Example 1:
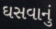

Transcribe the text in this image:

ઘસવાનું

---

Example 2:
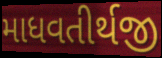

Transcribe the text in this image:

માધવતીર્થજી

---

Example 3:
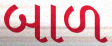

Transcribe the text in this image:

બાળ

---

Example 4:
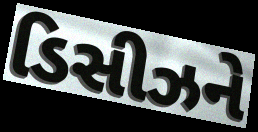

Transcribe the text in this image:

ડિસીઝને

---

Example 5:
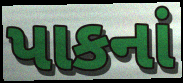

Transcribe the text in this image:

પાકનાં